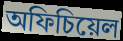
অফিচিয়েল